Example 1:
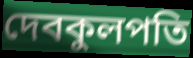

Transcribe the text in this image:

দেবকুলপতি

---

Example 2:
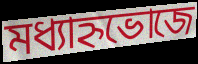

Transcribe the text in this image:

মধ্যাহ্নভোজে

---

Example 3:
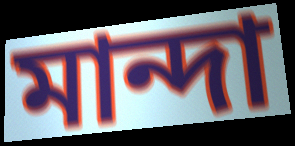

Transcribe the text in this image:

মান্দা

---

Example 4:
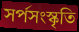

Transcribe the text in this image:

সর্পসংস্কৃতি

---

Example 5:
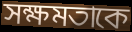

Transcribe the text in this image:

সক্ষমতাকে